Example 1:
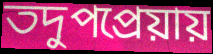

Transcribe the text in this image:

তদুপপ্রেয়ায়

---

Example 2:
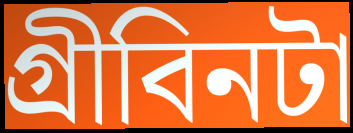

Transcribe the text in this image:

গ্রীবিনটা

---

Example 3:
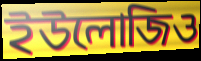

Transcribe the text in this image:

ইউলোজিও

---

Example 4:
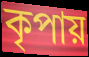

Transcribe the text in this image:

কৃপায়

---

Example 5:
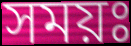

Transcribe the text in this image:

সময়ঃ